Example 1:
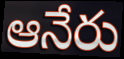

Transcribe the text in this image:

ఆనేరు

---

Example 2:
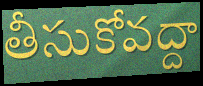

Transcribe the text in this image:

తీసుకోవద్దా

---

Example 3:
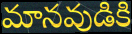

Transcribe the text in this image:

మానవుడికి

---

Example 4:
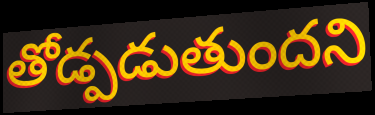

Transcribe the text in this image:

తోడ్పడుతుందని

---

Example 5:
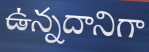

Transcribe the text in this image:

ఉన్నదానిగా